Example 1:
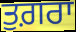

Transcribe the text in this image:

ਤੁਗ਼ਰਾ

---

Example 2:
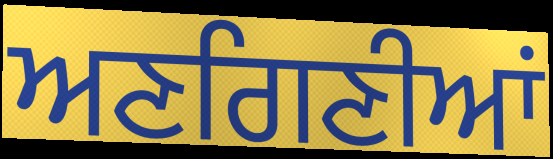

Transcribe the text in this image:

ਅਣਗਿਣੀਆਂ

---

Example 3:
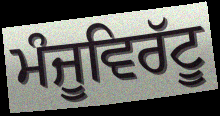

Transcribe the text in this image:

ਮੰਜੂਵਿਰੱਟੂ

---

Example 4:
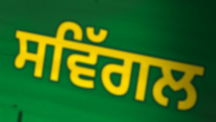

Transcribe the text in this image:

ਸਵਿੱਗਲ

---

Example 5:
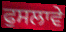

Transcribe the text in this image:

ਫੁਸਲਾਵੇ